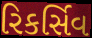
રિકર્સિવ